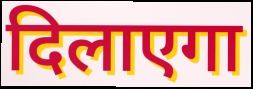
दिलाएगा